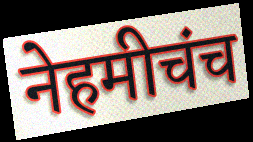
नेहमीचंच